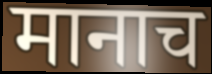
मानाच